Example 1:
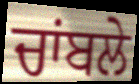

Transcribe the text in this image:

ਚਾਂਬਲੇ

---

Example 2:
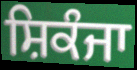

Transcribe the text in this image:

ਸ਼ਿਕੰਜਾ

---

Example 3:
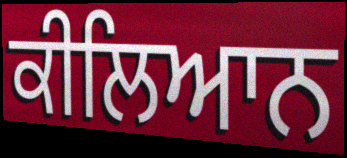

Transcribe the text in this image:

ਕੀਲਿਆਨ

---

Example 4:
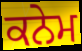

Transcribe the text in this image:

ਕਨੇਮ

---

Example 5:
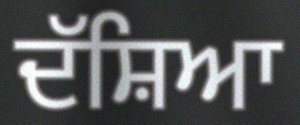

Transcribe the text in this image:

ਦੱਸ਼ਿਆ